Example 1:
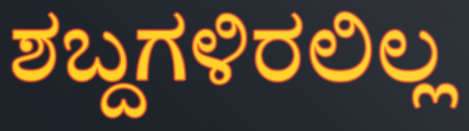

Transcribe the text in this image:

ಶಬ್ದಗಳಿರಲಿಲ್ಲ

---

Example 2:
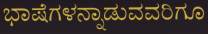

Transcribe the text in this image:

ಭಾಷೆಗಳನ್ನಾಡುವವರಿಗೂ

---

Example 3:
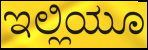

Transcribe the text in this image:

ಇಲ್ಲಿಯೂ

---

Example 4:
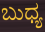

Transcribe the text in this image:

ಬುಧ್ಯ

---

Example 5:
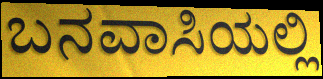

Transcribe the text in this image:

ಬನವಾಸಿಯಲ್ಲಿ